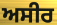
ਅਸੀਰ